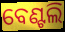
ବେଣ୍ଟଲି